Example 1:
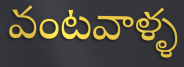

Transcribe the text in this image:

వంటవాళ్ళ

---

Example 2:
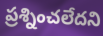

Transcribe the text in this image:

ప్రశ్నించలేదని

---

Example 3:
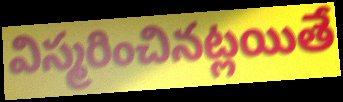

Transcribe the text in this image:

విస్మరించినట్లయితే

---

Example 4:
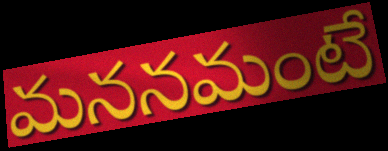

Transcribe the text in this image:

మననమంటే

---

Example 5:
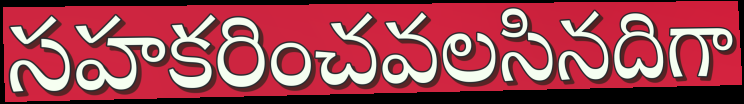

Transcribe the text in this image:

సహకరించవలసినదిగా